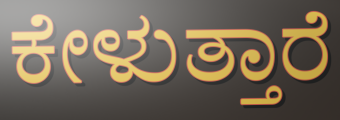
ಕೇಳುತ್ತಾರೆ